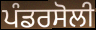
ਪੰਡਰਸੋਲੀ